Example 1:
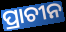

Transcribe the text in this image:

ପ୍ରାଚୀନ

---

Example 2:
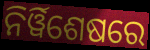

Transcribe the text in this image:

ନିର୍ୱିଶେଷରେ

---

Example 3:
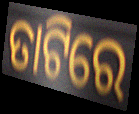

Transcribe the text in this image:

ତାଟିରେ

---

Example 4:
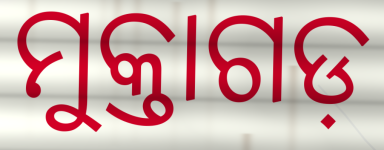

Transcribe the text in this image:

ମୁକ୍ତାଗଡ଼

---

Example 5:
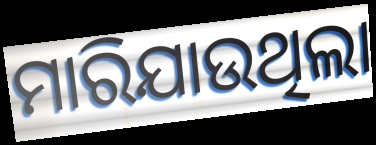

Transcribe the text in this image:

ମାରିଯାଉଥିଲା